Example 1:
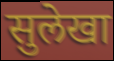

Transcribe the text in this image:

सुलेखा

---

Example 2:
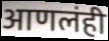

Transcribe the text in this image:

आणलंही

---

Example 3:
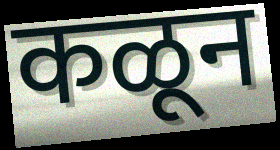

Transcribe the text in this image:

कळून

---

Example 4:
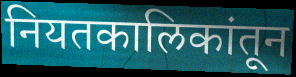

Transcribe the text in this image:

नियतकालिकांतून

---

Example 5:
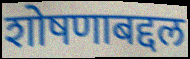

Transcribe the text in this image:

शोषणाबद्दल